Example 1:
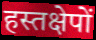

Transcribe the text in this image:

हस्तक्षेपों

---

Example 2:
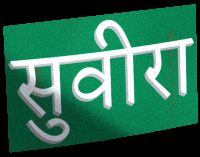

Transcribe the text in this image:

सुवीरा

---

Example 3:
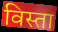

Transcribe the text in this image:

विस्ता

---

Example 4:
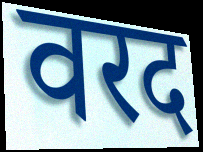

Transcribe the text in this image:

वरद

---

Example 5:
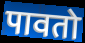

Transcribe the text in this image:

पावतो